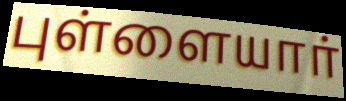
புள்ளையார்